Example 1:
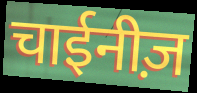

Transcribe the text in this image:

चाईनीज़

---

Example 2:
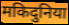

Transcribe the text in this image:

मकिदुनिया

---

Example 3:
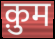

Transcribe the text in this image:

क़ुम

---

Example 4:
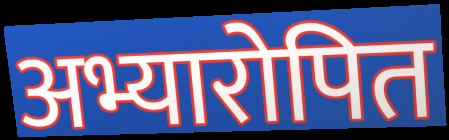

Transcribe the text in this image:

अभ्यारोपित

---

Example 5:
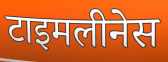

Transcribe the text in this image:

टाइमलीनेस